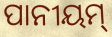
ପାନୀୟମ୍